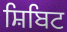
ਸ਼ਿਬਿਟ